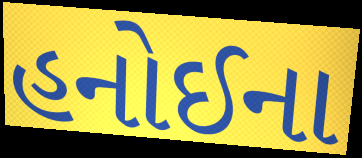
હનોઈના